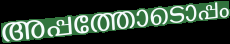
അപ്പത്തോടൊപ്പം